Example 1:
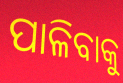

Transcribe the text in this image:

ପାଳିବାକୁ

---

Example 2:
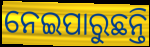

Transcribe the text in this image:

ନେଇପାରୁଛନ୍ତି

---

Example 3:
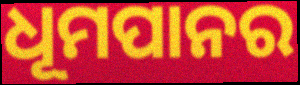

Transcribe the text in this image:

ଧୂମପାନର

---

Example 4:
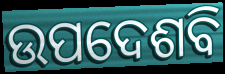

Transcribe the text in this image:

ଉପଦେଶବି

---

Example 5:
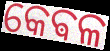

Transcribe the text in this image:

କେଵଳ